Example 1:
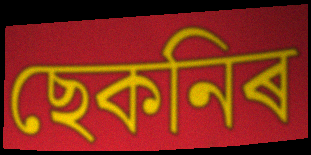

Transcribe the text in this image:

ছেকনিৰ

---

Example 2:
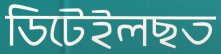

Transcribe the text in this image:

ডিটেইলছত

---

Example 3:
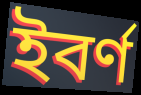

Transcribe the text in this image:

ইবৰ্ণ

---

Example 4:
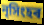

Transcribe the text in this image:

নৃসিংহৰ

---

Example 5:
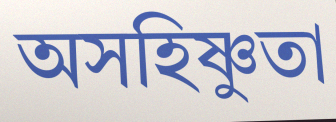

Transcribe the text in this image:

অসহিষ্ণুতা